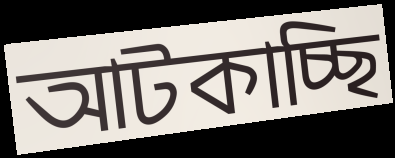
আটকাচ্ছি